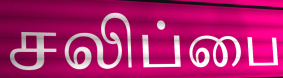
சலிப்பை